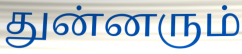
துன்னரும்